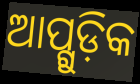
ଆପ୍ଗୁଡ଼ିକ